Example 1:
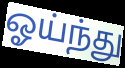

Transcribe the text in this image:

ஓய்ந்து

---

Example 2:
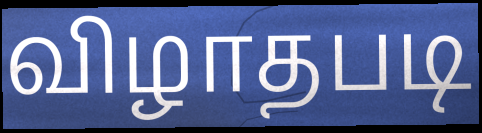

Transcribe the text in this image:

விழாதபடி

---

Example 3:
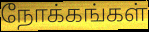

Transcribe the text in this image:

நோக்கங்கள்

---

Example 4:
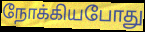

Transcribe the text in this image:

நோக்கியபோது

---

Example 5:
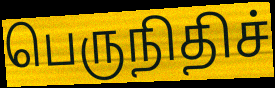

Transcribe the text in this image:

பெருநிதிச்